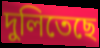
দুলিতেছে